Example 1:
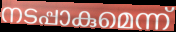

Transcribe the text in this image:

നടപ്പാകുമെന്ന്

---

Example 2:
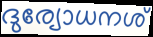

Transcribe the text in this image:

ദുര്യോധനശ്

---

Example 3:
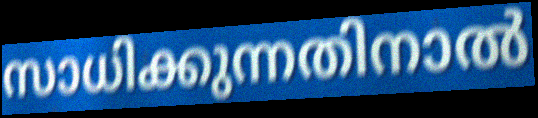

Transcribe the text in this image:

സാധിക്കുന്നതിനാൽ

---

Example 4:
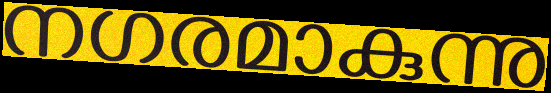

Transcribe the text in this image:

നഗരമാകുന്നു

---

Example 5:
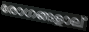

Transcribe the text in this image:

രോഗങ്ങളാല്